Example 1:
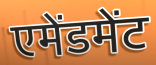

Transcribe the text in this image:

एमेंडमेंट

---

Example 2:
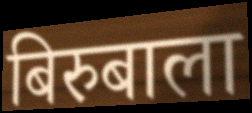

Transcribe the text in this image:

बिरुबाला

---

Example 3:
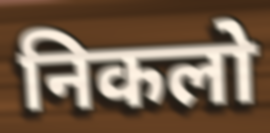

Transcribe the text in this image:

निकलो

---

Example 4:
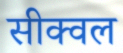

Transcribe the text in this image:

सीक्वल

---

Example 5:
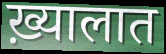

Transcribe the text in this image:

ख़्यालात